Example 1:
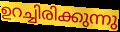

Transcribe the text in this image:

ഉറച്ചിരിക്കുന്നു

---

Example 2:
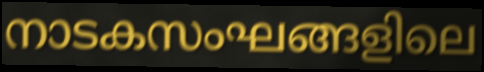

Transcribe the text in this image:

നാടകസംഘങ്ങളിലെ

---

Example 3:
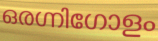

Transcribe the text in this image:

ഒരഗ്നിഗോളം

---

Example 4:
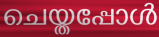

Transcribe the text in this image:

ചെയ്തപ്പോൾ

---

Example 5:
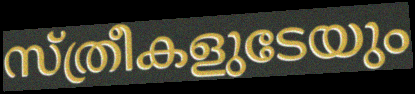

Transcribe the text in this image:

സ്ത്രീകളുടേയും